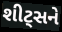
શીટ્સને